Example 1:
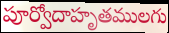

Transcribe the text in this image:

పూర్వోదాహృతములగు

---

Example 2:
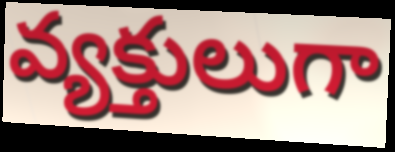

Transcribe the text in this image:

వ్యక్తులుగా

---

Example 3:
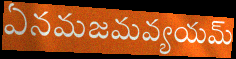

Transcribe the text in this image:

ఏనమజమవ్యయమ్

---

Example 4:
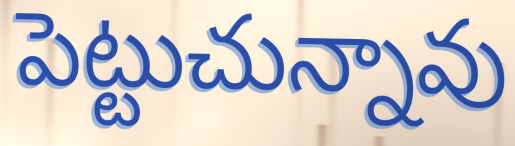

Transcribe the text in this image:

పెట్టుచున్నావు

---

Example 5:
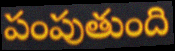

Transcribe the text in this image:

పంపుతుంది